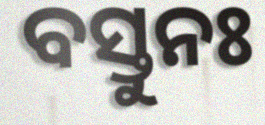
ବସ୍ତୁନଃ